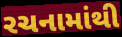
રચનામાંથી